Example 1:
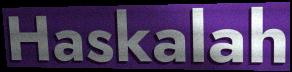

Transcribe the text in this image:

Haskalah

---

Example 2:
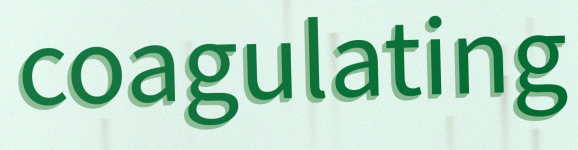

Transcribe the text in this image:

coagulating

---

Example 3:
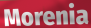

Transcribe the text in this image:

Morenia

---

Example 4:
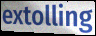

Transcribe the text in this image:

extolling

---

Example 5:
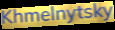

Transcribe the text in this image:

Khmelnytsky